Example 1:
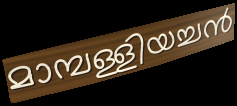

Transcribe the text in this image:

മാമ്പള്ളിയച്ചൻ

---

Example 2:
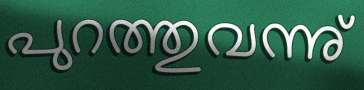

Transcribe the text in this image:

പുറത്തുവന്നു്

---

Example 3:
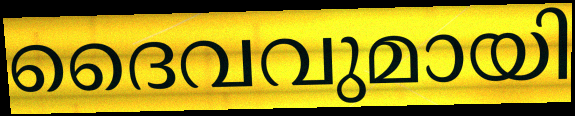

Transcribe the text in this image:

ദൈവവുമായി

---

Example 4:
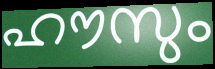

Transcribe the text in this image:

ഹൗസും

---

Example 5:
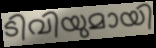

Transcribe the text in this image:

ടിവിയുമായി